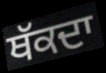
ਥੱਕਦਾ